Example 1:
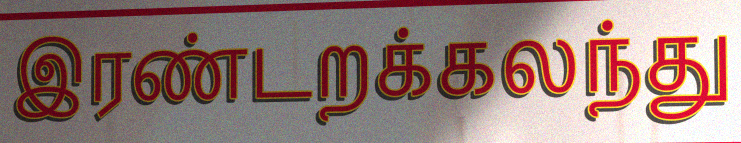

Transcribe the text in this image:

இரண்டறக்கலந்து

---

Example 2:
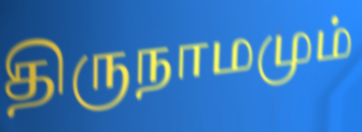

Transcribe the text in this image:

திருநாமமும்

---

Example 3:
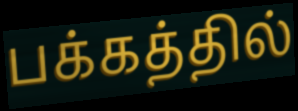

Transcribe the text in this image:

பக்கத்தில்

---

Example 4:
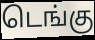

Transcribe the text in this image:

டெங்கு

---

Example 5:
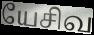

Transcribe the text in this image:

யேசிவ